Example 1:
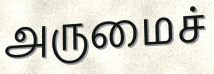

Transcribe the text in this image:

அருமைச்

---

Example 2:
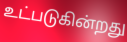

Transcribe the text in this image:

உட்படுகின்றது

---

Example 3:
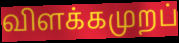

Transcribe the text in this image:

விளக்கமுறப்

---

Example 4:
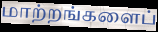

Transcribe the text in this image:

மாற்றங்களைப்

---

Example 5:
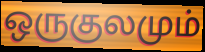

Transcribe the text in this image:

ஒருகுலமும்